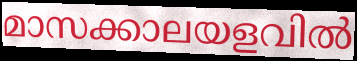
മാസക്കാലയളവിൽ